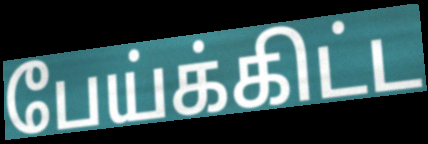
பேய்க்கிட்ட